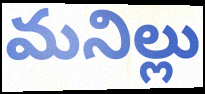
మనిల్లు